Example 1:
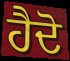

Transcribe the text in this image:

ਹੈਦੋ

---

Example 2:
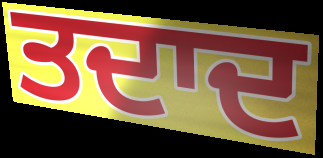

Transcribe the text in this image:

ਤਦਾਦ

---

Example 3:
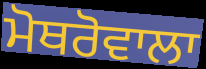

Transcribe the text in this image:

ਮੋਥਰੋਵਾਲਾ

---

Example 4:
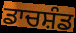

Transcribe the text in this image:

ਡਾਚਸ਼ੰਡ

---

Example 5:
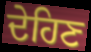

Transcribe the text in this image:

ਦੇਹਿਣ